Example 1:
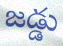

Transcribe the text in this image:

జడ్డు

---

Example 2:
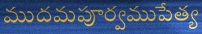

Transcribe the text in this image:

ముదమపూర్వముపేత్య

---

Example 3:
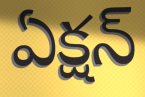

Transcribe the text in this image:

ఏక్షన్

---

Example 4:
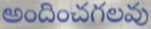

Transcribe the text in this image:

అందించగలవు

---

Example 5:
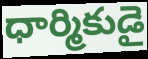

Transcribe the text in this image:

ధార్మికుడై